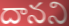
దానని